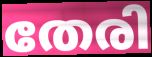
തേരി